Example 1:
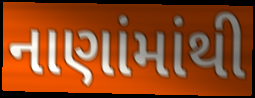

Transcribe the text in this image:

નાણાંમાંથી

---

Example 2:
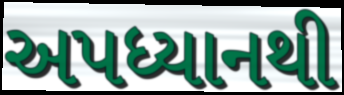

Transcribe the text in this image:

અપધ્યાનથી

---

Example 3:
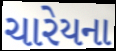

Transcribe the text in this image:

ચારેયના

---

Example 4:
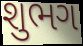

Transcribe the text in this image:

શુભગ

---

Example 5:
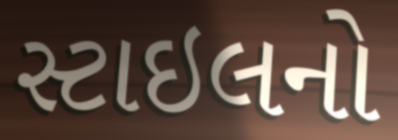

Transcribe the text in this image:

સ્ટાઇલનો